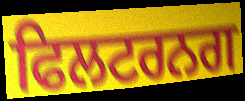
ਫਿਲਟਰਨਗ